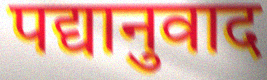
पद्यानुवाद